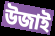
উজাই